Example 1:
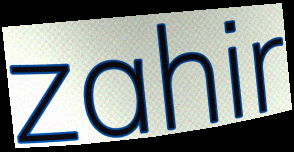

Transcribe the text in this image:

zahir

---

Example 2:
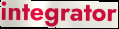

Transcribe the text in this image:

integrator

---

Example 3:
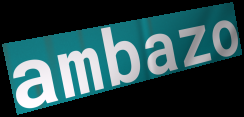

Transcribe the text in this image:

ambazo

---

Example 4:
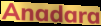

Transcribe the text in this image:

Anadara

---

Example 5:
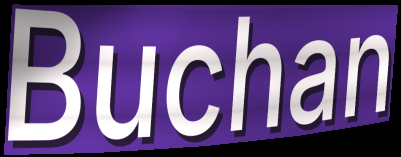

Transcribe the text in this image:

Buchan